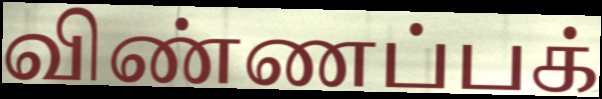
விண்ணப்பக்